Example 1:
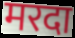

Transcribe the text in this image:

मरदा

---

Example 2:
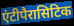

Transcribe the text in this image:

एंटीपैरासिटिक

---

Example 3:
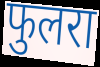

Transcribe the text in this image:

फुलरा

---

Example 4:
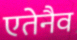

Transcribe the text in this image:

एतेनैव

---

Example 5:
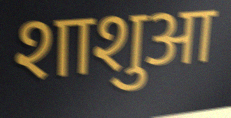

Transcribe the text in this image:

शाशुआ